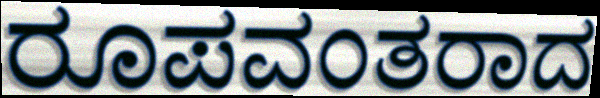
ರೂಪವಂತರಾದ